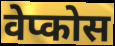
वेप्कोस